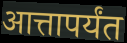
आत्तापर्यंत